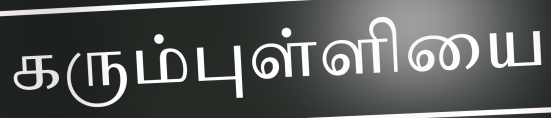
கரும்புள்ளியை